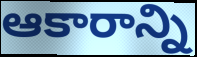
ఆకారాన్ని